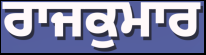
ਰਾਜਕੁਮਾਰ